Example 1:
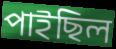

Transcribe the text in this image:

পাইছিল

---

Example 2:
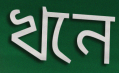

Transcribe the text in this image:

খনে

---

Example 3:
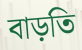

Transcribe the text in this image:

বাড়তি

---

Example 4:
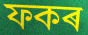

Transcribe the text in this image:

ফকৰ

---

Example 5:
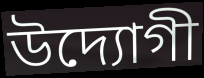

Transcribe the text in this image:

উদ্যোগী